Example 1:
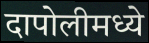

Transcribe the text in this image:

दापोलीमध्ये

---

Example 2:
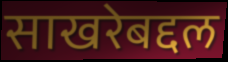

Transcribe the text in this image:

साखरेबद्दल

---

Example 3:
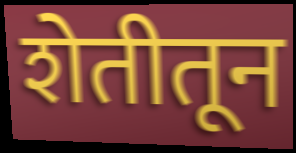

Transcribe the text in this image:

शेतीतून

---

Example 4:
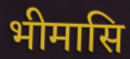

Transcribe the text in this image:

भीमासि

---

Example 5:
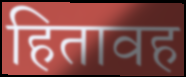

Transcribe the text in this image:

हितावह